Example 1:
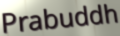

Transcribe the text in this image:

Prabuddh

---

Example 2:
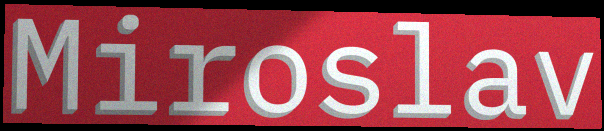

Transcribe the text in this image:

Miroslav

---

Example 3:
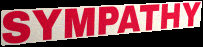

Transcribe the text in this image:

SYMPATHY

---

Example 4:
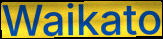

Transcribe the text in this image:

Waikato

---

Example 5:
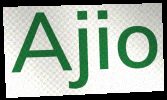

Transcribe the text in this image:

Ajio